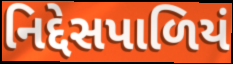
નિદ્દેસપાળિયં